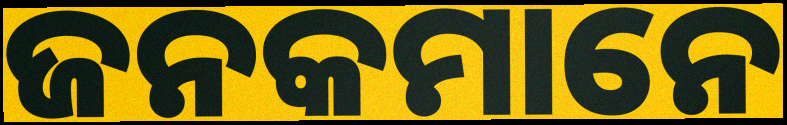
ଜନକମାନେ